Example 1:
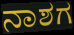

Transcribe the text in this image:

ನಾಶಗ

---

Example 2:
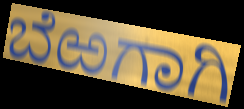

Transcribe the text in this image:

ಬೆಱಗಾಗಿ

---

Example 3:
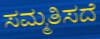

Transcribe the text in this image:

ಸಮ್ಮತಿಸದೆ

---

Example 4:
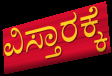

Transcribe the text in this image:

ವಿಸ್ತಾರಕ್ಕೆ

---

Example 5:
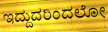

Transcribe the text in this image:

ಇದ್ದುದರಿಂದಲೋ